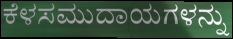
ಕೆಳಸಮುದಾಯಗಳನ್ನು